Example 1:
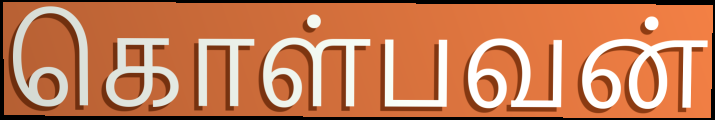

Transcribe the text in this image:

கொள்பவன்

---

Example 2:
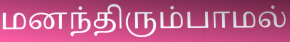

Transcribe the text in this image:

மனந்திரும்பாமல்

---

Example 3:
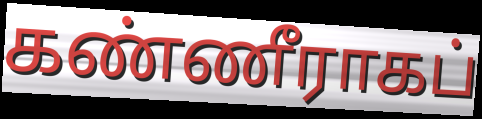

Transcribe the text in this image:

கண்ணீராகப்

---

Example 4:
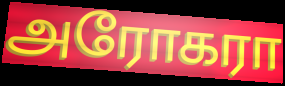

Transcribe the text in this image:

அரோகரா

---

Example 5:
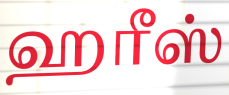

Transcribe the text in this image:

ஹரீஸ்